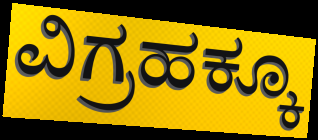
ವಿಗ್ರಹಕ್ಕೂ